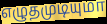
எழுதமுடியுமா